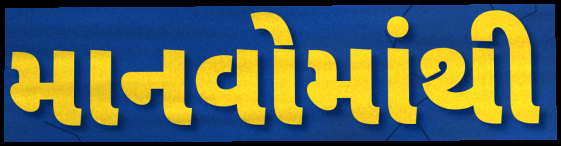
માનવોમાંથી